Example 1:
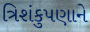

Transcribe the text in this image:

ત્રિશંકુપણાને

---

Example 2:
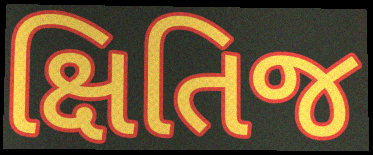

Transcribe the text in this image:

ક્ષિતિજ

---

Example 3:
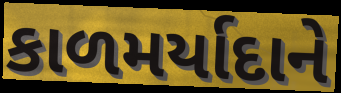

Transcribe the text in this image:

કાળમર્યાદાને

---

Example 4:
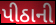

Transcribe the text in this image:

પીઠાની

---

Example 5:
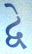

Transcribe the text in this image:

દ્વે